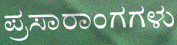
ಪ್ರಸಾರಾಂಗಗಳು